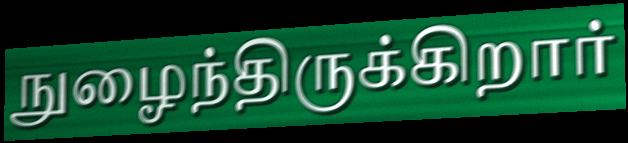
நுழைந்திருக்கிறார்